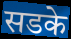
सडके